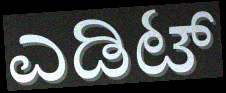
ಎಡಿಟ್